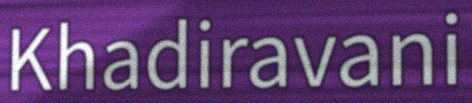
Khadiravani